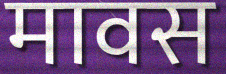
मावस